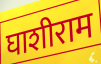
घाशीराम